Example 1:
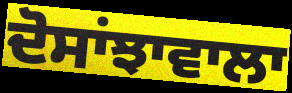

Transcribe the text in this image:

ਦੋਸਾਂਝਾਵਾਲਾ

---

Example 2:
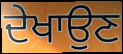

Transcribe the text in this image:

ਦੇਖਾਉਣ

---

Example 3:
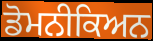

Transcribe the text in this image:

ਡੋਮਨੀਕਿਅਨ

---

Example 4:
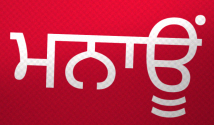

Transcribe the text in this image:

ਮਨਾਊਂ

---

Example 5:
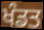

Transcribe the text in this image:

ਖੰਡਤ